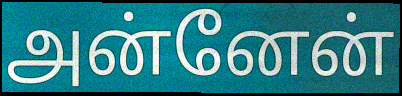
அன்னேன்